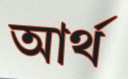
আর্থ